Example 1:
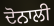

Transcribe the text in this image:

ਦੋਨਾਲੀ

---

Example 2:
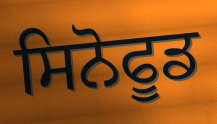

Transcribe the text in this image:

ਸਿਨੋਫੂਡ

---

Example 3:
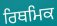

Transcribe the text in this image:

ਰਿਥਮਿਕ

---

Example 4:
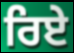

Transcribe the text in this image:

ਰਿਏ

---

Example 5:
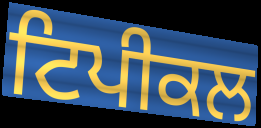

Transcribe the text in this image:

ਟਿਪੀਕਲ